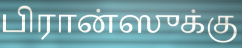
பிரான்ஸுக்கு